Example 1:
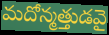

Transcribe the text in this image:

మదోన్మత్తుడవై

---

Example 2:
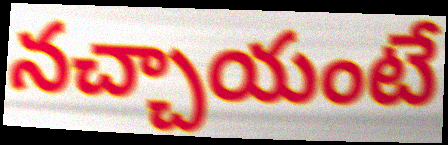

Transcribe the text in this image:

నచ్చాయంటే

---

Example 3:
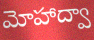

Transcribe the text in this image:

మోహాద్వా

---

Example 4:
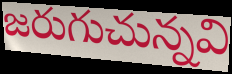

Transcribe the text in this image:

జరుగుచున్నవి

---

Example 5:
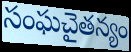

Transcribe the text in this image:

సంఘచైతన్యం